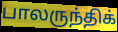
பாலருந்திக்